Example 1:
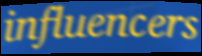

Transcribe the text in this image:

influencers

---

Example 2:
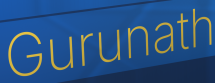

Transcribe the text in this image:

Gurunath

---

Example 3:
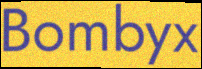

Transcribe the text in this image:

Bombyx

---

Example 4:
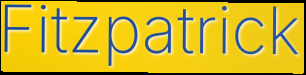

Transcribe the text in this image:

Fitzpatrick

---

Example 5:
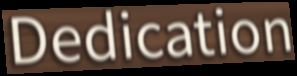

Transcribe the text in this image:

Dedication